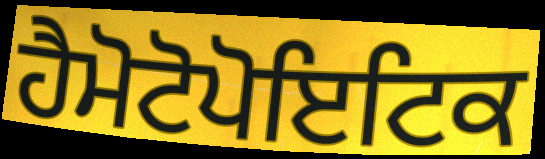
ਹੈਮੋਟੋਪੋਇਟਿਕ